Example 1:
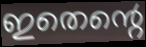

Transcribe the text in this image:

ഇതെന്റെ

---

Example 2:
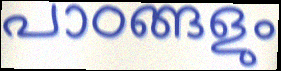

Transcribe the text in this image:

പാഠങ്ങളും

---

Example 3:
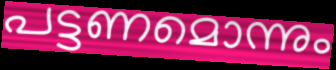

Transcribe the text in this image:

പട്ടണമൊന്നും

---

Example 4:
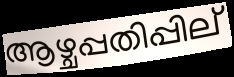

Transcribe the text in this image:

ആഴ്ചപ്പതിപ്പില്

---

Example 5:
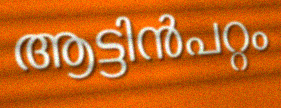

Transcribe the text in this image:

ആട്ടിൻപറ്റം